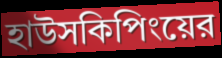
হাউসকিপিংয়ের